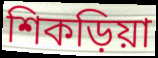
শিকড়িয়া